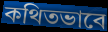
কথিতভাবে